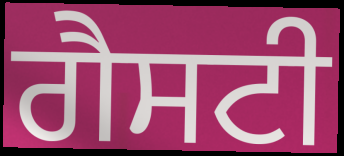
ਗੈਸਟੀ